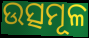
ଉତ୍ସମୂଳ